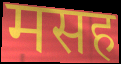
मसह